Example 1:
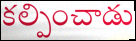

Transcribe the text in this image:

కల్పించాడు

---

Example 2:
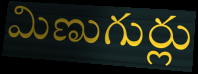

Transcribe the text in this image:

మిణుగుర్లు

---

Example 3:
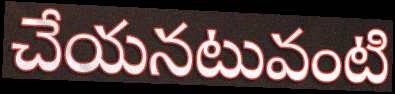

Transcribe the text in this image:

చేయనటువంటి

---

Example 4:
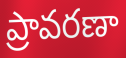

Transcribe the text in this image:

ప్రావరణా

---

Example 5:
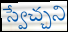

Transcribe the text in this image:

స్వేచ్చని